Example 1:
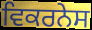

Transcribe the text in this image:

ਵਿਕਰਨੇਸ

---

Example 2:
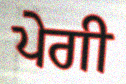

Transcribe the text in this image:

ਪੇਗੀ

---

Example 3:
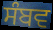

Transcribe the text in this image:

ਸੰਬਵ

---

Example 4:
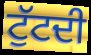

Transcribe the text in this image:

ਟੁੱਟਦੀ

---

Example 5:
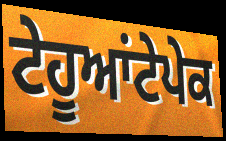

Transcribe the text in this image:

ਟੇਹੂਆਂਟੇਪੇਕ